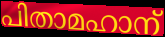
പിതാമഹാന്